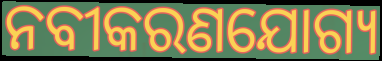
ନବୀକରଣଯୋଗ୍ୟ